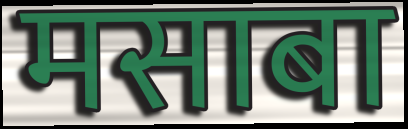
मसाबा